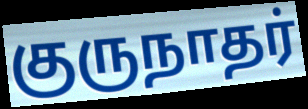
குருநாதர்